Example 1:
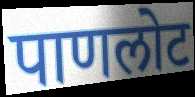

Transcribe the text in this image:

पाणलोट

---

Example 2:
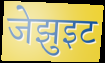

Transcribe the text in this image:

जेझुइट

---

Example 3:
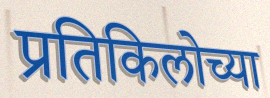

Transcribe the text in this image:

प्रतिकिलोच्या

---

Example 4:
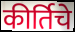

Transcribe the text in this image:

कीर्तिचे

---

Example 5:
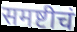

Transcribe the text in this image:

समष्टीचं